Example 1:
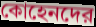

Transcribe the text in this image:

কোহেনদের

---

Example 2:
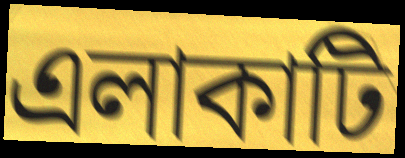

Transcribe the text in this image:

এলাকাটি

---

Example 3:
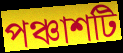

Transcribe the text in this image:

পঞ্চাশটি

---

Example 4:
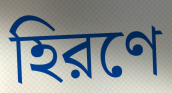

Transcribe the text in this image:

হিরণে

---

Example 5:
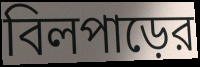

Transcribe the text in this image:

বিলপাড়ের